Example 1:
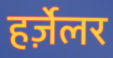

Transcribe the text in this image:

हर्ज़ेलर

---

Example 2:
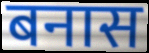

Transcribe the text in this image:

बनास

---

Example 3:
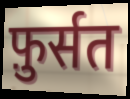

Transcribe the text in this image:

फ़ुर्सत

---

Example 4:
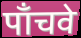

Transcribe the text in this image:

पाँचवे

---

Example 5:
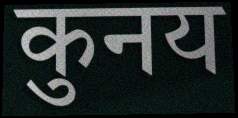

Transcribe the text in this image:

कुनय